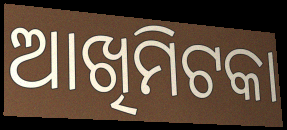
ଆଖିମିଟକା